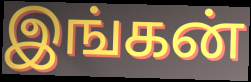
இங்கன்